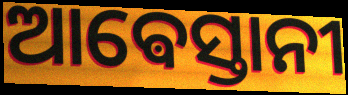
ଆଵେସ୍ତାନୀ